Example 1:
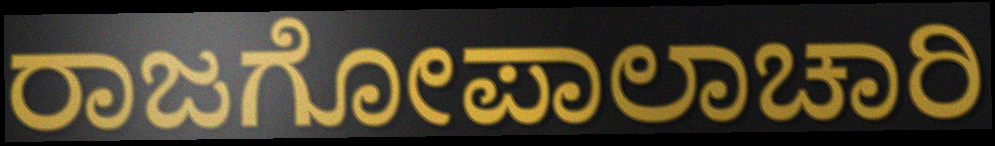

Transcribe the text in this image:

ರಾಜಗೋಪಾಲಾಚಾರಿ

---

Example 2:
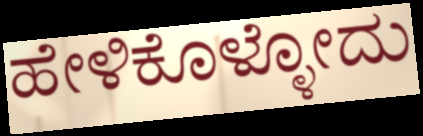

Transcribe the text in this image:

ಹೇಳಿಕೊಳ್ಳೋದು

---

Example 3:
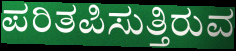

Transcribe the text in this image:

ಪರಿತಪಿಸುತ್ತಿರುವ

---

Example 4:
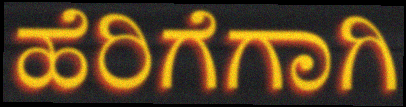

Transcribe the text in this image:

ಹೆರಿಗೆಗಾಗಿ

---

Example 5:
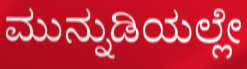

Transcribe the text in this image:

ಮುನ್ನುಡಿಯಲ್ಲೇ